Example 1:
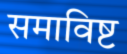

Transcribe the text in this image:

समाविष्ट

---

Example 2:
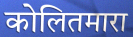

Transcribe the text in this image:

कोलितमारा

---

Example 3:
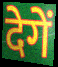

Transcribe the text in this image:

देगें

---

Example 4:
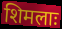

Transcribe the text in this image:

शिमलाः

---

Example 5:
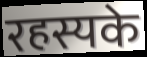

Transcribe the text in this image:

रहस्यके